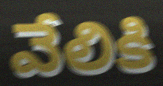
వేలికి